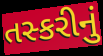
તસ્કરીનું